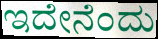
ಇದೇನೆಂದು